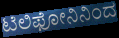
ಟೆಲಿಫೋನಿನಿಂದ